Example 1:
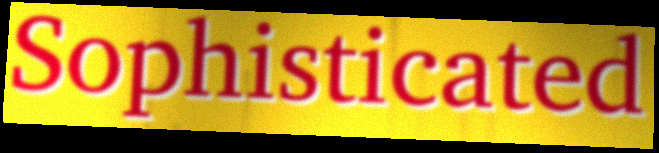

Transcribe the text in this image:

Sophisticated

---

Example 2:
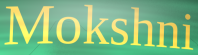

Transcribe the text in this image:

Mokshni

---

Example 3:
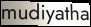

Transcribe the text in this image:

mudiyatha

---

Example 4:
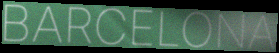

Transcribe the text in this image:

BARCELONA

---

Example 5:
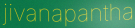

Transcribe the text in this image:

jivanapantha